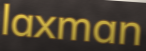
laxman